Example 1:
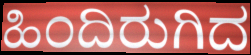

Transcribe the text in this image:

ಹಿಂದಿರುಗಿದ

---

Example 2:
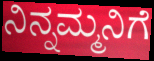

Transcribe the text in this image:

ನಿನ್ನಮ್ಮನಿಗೆ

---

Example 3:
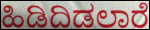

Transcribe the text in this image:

ಹಿಡಿದಿಡಲಾರೆ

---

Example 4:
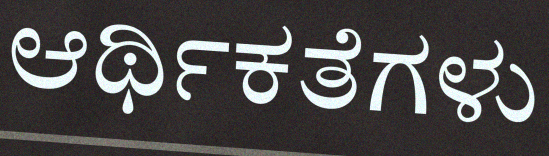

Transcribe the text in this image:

ಆರ್ಥಿಕತೆಗಳು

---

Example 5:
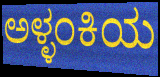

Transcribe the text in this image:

ಅಳ್ಳಂಕಿಯ